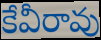
కేవీరావు